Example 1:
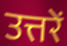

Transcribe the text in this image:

उत्तरें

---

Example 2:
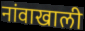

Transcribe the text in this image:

नांवाखाली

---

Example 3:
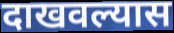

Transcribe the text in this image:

दाखवल्यास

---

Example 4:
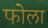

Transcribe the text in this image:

फोला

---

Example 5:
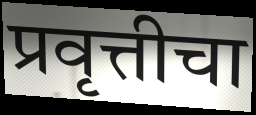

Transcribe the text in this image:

प्रवृत्तीचा